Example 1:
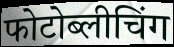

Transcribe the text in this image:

फोटोब्लीचिंग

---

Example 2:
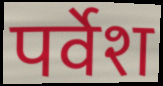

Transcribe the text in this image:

पर्वेश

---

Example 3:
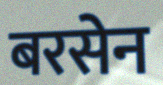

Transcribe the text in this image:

बरसेन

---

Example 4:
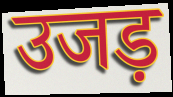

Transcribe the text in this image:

उजड़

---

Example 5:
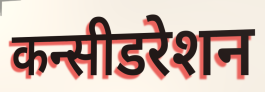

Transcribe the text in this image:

कन्सीडरेशन